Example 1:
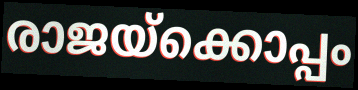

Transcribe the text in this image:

രാജയ്ക്കൊപ്പം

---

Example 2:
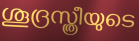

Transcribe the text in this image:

ശൂദ്രസ്ത്രീയുടെ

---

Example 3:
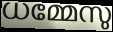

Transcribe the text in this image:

ധമ്മേസു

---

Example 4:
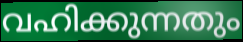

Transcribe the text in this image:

വഹിക്കുന്നതും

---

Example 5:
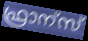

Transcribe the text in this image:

ഫ്രാന്സ്